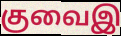
குவைஇ